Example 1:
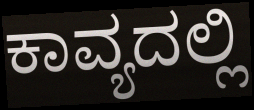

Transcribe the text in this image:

ಕಾವ್ಯದಲ್ಲಿ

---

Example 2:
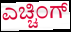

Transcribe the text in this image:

ಎಚ್ಚಿಂಗ್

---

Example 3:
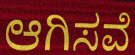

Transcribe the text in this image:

ಆಗಿಸವೆ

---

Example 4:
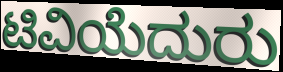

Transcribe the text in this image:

ಟಿವಿಯೆದುರು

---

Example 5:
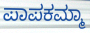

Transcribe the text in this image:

ಪಾಪಕಮ್ಮಾ